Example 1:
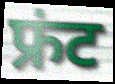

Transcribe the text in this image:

फ्रंट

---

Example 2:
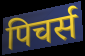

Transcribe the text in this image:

पिचर्स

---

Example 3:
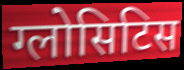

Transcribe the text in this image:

ग्लोसिटिस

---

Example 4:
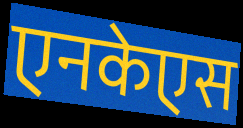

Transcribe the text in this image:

एनकेएस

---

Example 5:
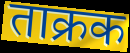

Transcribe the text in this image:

ताक्रक